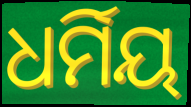
ଧର୍ମିୟ